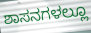
ಶಾಸನಗಳಲ್ಲೂ